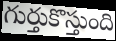
గుర్తుకొస్తుంది